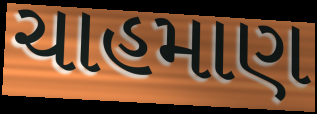
ચાહમાણ